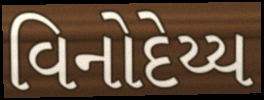
વિનોદેય્ય